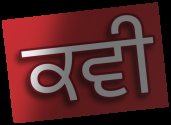
ਕਵੀ